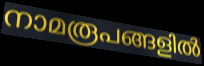
നാമരൂപങ്ങളിൽ